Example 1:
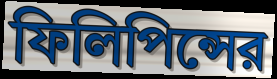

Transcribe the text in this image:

ফিলিপিন্সের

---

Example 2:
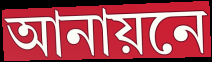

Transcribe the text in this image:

আনায়নে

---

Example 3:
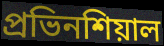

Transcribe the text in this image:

প্রভিনশিয়াল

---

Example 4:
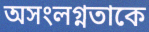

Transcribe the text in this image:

অসংলগ্নতাকে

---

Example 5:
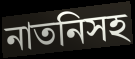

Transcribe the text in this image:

নাতনিসহ